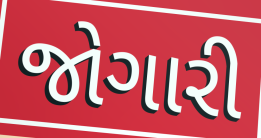
જોગારી